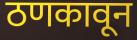
ठणकावून